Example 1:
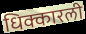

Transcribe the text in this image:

धिक्कारली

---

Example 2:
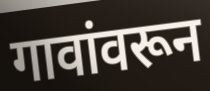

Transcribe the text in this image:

गावांवरून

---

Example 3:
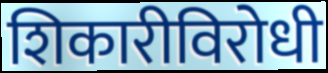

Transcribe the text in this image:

शिकारीविरोधी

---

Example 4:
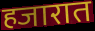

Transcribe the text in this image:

हजारात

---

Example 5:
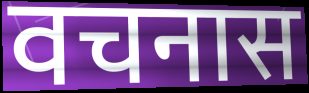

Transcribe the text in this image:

वचनास